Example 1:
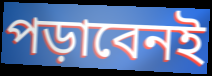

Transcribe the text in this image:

পড়াবেনই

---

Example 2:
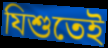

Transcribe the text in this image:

যিশুতেই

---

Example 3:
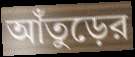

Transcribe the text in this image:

আঁতুড়ের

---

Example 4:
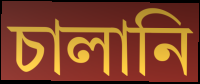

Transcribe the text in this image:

চালানি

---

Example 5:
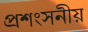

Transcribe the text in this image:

প্রশংসনীয়